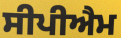
ਸੀਪੀਐਮ